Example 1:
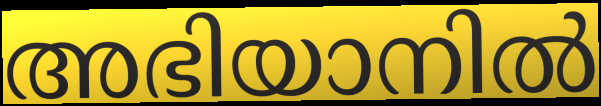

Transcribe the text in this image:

അഭിയാനിൽ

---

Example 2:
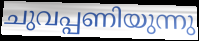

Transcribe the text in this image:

ചുവപ്പണിയുന്നു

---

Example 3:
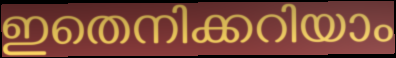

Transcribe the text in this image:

ഇതെനിക്കറിയാം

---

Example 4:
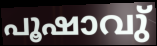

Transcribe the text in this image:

പൂഷാവു്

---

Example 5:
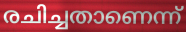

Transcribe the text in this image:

രചിച്ചതാണെന്ന്